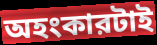
অহংকারটাই